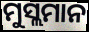
ମୁସ୍ଲମାନ